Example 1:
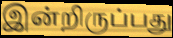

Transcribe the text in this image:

இன்றிருப்பது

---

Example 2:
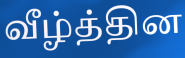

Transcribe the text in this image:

வீழ்த்தின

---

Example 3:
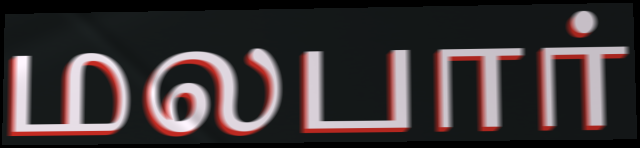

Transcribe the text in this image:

மலபார்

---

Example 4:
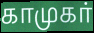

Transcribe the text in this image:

காமுகர்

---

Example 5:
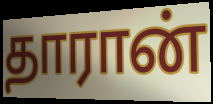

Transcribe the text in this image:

தாரான்